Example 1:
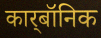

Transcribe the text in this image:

कार्‌बॉनिक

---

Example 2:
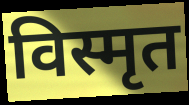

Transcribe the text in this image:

विस्मृत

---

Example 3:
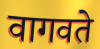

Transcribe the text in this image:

वागवते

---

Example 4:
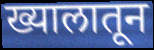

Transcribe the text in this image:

ख्यालातून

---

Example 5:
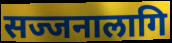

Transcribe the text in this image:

सज्जनालागि